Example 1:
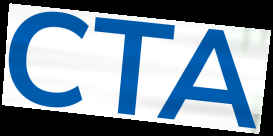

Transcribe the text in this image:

CTA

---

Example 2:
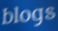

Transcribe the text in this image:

blogs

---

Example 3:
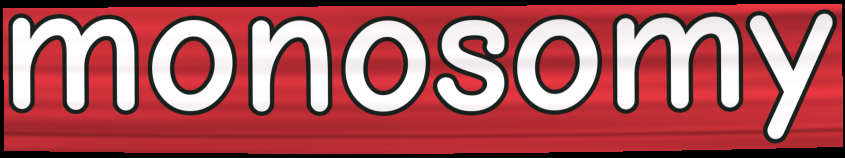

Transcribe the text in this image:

monosomy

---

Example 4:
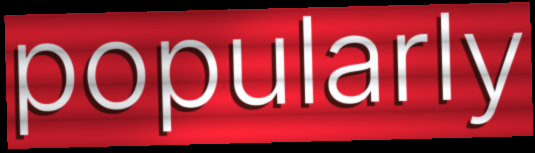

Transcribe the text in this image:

popularly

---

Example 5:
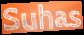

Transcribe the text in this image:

Suhas